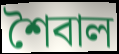
শৈবাল